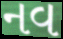
નવ